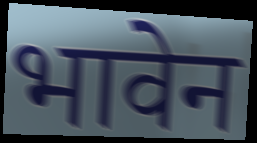
भावेन